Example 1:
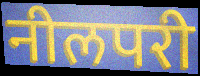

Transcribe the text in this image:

नीलपरी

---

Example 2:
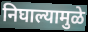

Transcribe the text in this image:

निघाल्यामुळे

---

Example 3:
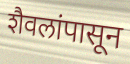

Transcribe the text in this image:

शैवलांपासून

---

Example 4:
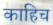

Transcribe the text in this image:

काहिच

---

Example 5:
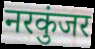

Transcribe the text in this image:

नरकुंजर